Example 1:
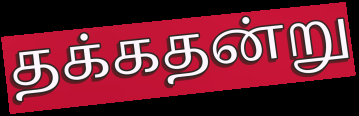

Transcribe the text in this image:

தக்கதன்று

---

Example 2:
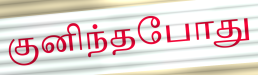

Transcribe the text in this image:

குனிந்தபோது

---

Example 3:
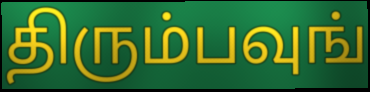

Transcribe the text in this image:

திரும்பவுங்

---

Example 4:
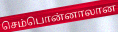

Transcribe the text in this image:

செம்பொன்னாலான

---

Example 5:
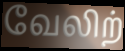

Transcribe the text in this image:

வேலிற்